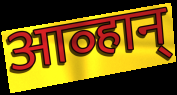
आव्हान्